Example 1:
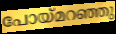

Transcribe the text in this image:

പോയ്മറഞ്ഞു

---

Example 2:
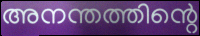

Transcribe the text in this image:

അനന്തത്തിന്റെ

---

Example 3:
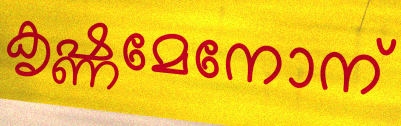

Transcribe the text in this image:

കൃഷ്ണമേനോന്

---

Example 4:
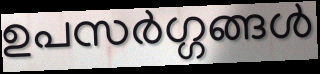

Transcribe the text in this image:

ഉപസർഗ്ഗങ്ങൾ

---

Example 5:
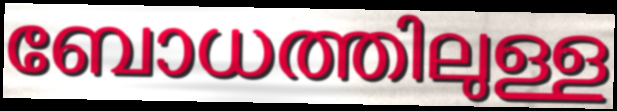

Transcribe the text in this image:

ബോധത്തിലുള്ള